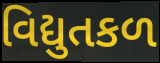
વિદ્યુતકળ